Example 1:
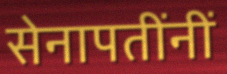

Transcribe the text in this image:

सेनापतींनीं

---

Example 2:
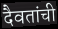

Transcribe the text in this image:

दैवतांची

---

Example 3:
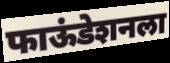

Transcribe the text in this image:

फाऊंडेशनला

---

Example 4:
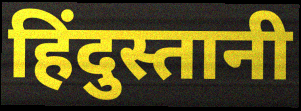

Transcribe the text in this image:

हिंदुस्तानी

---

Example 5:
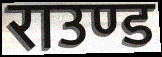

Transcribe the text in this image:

राउण्ड